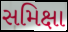
સમિક્ષા